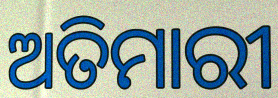
ଅତିମାରୀ